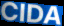
CIDA